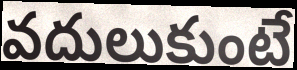
వదులుకుంటే